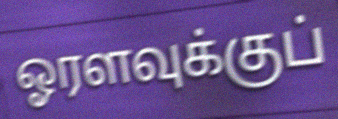
ஓரளவுக்குப்